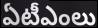
ఏటీఎంలు